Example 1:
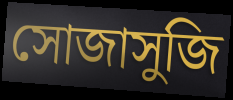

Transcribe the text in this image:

সোজাসুজি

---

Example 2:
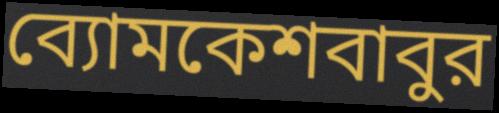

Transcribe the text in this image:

ব্যোমকেশবাবুর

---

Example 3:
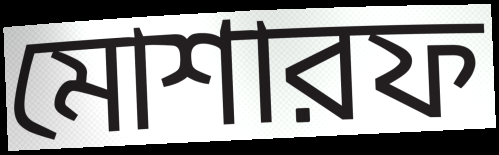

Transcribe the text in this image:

মোশারফ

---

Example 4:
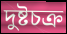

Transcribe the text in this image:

দুষ্টচক্র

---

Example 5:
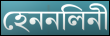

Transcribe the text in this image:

হেননলিনী